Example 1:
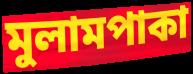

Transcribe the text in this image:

মুলামপাকা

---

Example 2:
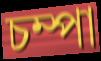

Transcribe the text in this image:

চম্পা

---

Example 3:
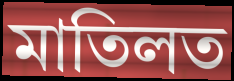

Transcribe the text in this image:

মাতিলত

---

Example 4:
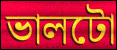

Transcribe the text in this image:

ভালটো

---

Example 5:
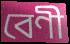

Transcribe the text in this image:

বেণী